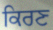
ਕਿਰਣ